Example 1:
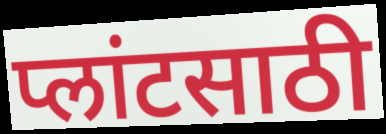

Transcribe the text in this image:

प्लांटसाठी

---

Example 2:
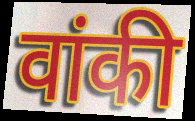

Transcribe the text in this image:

वांकी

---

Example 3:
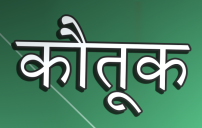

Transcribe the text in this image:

कौतूक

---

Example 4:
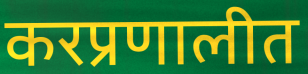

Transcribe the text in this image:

करप्रणालीत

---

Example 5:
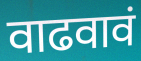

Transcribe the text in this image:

वाढवावं